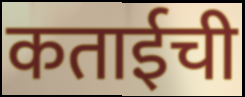
कताईची